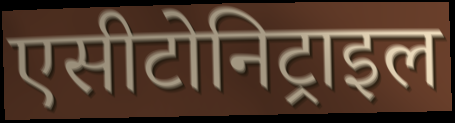
एसीटोनिट्राइल